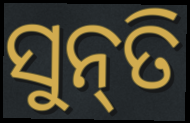
ସୁନ୍‌ତି